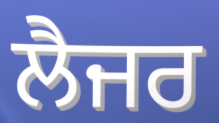
ਲੈਜਰ